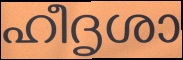
ഹീദൃശാ